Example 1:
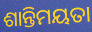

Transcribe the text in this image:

ଶାନ୍ତିମୟତା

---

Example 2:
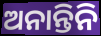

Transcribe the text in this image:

ଅନାନ୍ତିନି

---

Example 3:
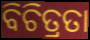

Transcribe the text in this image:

ବିଚିତ୍ରତା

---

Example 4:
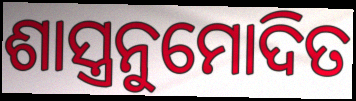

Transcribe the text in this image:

ଶାସ୍ତ୍ରନୁମୋଦିତ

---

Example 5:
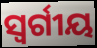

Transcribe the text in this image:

ସ୍ୱର୍ଗୀୟ